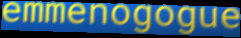
emmenogogue